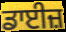
ਡਾਈਜ਼